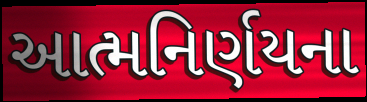
આત્મનિર્ણયના